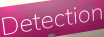
Detection